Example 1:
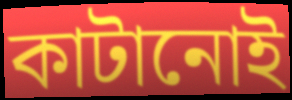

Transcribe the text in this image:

কাটানোই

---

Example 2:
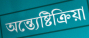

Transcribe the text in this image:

অন্ত্যেষ্টিক্রিয়া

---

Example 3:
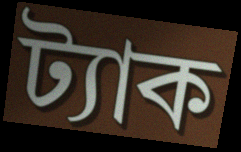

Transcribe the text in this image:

ট্যাক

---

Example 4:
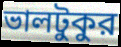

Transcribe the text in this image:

ভালটুকুর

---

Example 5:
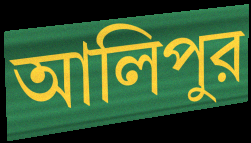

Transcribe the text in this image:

আলিপুর